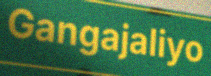
Gangajaliyo